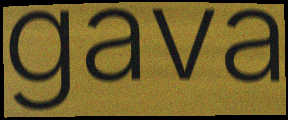
gava